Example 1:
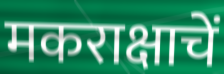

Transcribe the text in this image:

मकराक्षाचें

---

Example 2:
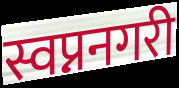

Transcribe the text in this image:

स्वप्ननगरी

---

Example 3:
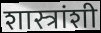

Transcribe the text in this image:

शास्त्रांशी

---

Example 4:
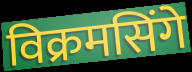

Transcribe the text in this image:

विक्रमसिंगे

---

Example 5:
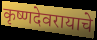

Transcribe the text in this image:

कृष्णदेवरायाचे